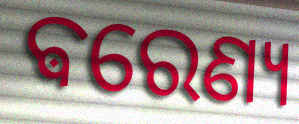
ଵରେଣ୍ୟ